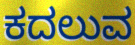
ಕದಲುವ